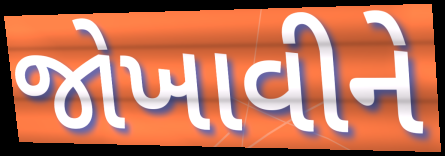
જોખાવીને